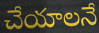
చేయాలనే